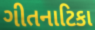
ગીતનાટિકા